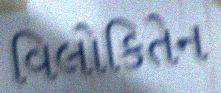
વિલોકિતેન